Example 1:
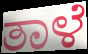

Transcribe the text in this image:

ತಾಳೆ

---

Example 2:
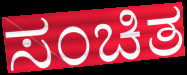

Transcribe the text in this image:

ಸಂಚಿತ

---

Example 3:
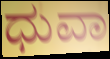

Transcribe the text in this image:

ಧುವಾ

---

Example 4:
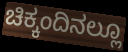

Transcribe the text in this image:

ಚಿಕ್ಕಂದಿನಲ್ಲೂ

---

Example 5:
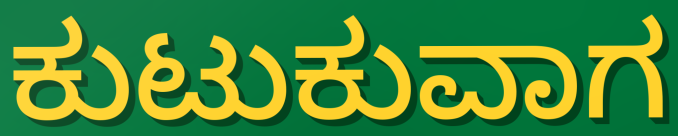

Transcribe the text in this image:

ಕುಟುಕುವಾಗ